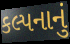
કલ્પનાનું